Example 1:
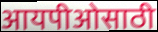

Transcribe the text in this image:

आयपीओसाठी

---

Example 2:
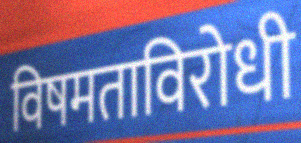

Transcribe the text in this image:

विषमताविरोधी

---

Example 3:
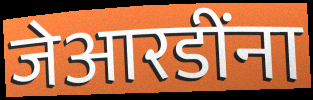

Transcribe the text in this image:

जेआरडींना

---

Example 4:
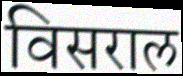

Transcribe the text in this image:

विसराल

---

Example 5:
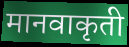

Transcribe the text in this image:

मानवाकृती